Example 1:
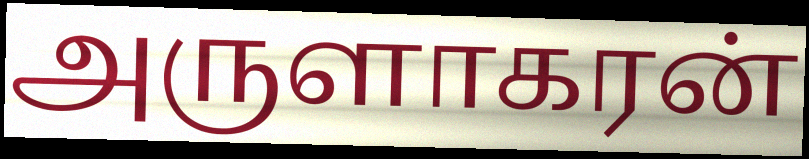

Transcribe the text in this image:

அருளாகரன்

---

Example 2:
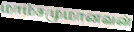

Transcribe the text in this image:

மாம்சமுமானவன்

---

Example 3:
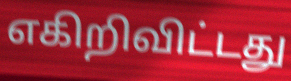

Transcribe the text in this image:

எகிறிவிட்டது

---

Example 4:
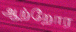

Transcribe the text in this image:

ஆற்றோர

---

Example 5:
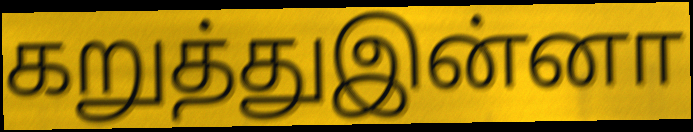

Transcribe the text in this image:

கறுத்துஇன்னா